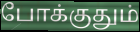
போக்குதும்